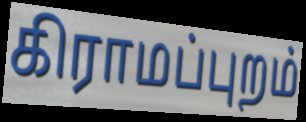
கிராமப்புறம்